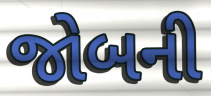
જોબની